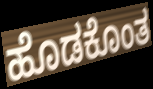
ಹೊಡಕೊಂತ